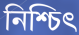
নিশ্চিৎ